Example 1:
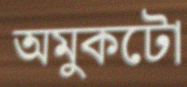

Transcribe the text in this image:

অমুকটো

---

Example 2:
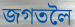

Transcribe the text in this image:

জগতলৈ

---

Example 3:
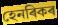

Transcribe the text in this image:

হেনৰিকৰ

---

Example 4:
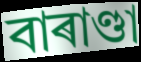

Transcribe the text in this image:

বাৰাণ্ডা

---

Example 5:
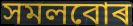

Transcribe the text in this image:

সমলবোৰ